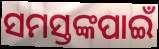
ସମସ୍ତଙ୍କପାଇଁ